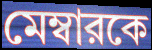
মেম্বারকে